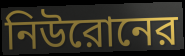
নিউরোনের